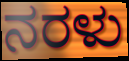
ನರಳು